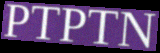
PTPTN